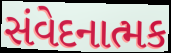
સંવેદનાત્મક